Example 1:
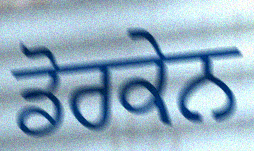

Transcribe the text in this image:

ਡੋਰਕੇਨ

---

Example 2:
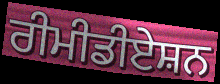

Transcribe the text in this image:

ਰੀਮੀਡੀਏਸ਼ਨ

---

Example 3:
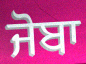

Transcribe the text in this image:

ਜੋਬਾ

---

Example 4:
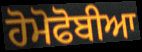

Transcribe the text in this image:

ਹੋਮੋਫੋਬੀਆ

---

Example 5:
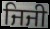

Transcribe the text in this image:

ਜਿਜੀ